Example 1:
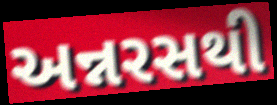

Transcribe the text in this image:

અન્નરસથી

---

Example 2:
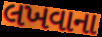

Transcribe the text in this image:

લખવાના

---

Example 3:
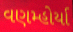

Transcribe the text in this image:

વણમ્હોર્યા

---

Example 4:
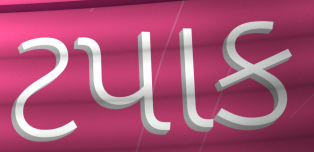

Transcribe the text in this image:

ટપાક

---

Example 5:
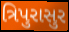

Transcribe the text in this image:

ત્રિપુરાસુર